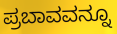
ಪ್ರಬಾವವನ್ನೂ